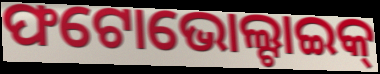
ଫଟୋଭୋଲ୍ଟାଇକ୍